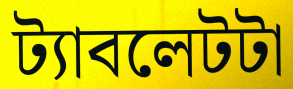
ট্যাবলেটটা